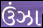
ઉંઝા